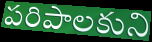
పరిపాలకుని